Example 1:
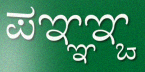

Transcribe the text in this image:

ಪಞ್ಞಞ್ಚ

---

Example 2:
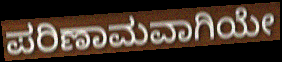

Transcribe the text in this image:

ಪರಿಣಾಮವಾಗಿಯೇ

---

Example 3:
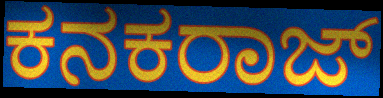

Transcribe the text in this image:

ಕನಕರಾಜ್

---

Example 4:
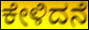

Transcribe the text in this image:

ಕೇಳಿದನೆ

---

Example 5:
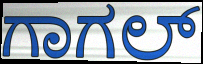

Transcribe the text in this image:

ಗಾಗಲ್